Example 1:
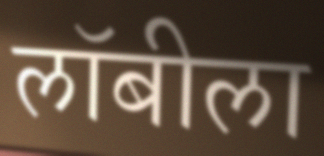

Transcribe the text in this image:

लॉबीला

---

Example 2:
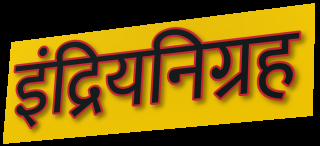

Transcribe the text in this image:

इंद्रियनिग्रह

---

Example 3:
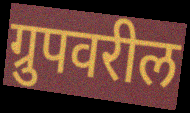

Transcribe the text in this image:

ग्रुपवरील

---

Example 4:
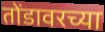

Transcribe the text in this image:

तोंडावरच्या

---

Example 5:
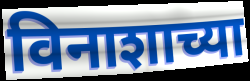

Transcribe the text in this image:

विनाशाच्या